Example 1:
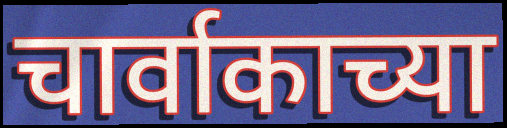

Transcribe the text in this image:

चार्वाकाच्या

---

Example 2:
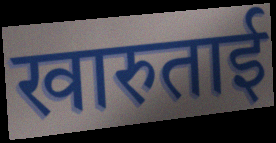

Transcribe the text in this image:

खारुताई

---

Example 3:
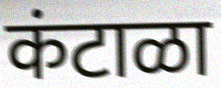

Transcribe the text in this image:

कंटाळा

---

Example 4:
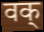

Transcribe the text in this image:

वक्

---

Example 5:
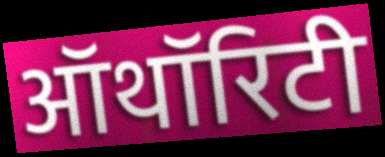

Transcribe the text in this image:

ऑथॉरिटी